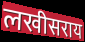
लखीसराय